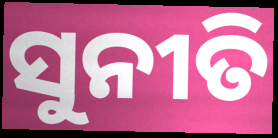
ସୁନୀତି